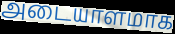
அடையாளமாக